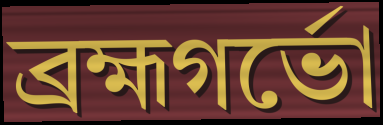
ব্রহ্মগর্ভো